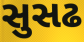
સુસઢ